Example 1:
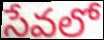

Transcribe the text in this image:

సేవలో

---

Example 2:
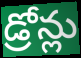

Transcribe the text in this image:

డ్రోన్లు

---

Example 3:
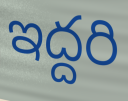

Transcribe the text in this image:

ఇద్దరి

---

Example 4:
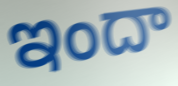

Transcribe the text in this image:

ఇందా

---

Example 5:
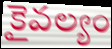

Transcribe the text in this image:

కైవల్యం